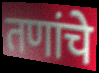
तणांचे